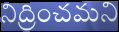
నిద్రించమని